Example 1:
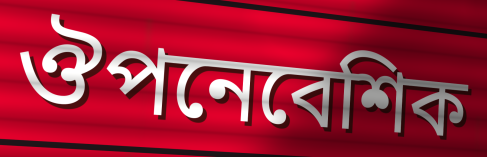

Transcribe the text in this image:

ঔপনেবেশিক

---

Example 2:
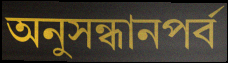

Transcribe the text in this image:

অনুসন্ধানপর্ব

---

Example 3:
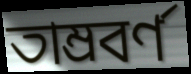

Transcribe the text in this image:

তাম্রবর্ণ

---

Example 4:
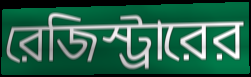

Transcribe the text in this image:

রেজিস্ট্রারের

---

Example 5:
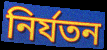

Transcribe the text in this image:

নির্যতন